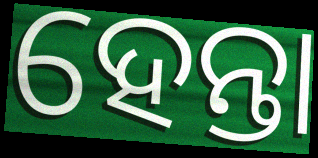
ହେନ୍ତା